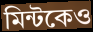
মিন্টকেও